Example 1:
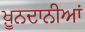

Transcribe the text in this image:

ਖ਼ੂਨਦਾਨੀਆਂ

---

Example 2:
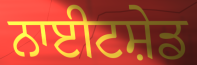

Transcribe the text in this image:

ਨਾਈਟਸ਼ੇਡ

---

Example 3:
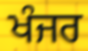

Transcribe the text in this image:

ਖੰਜਰ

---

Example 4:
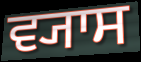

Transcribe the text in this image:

ਵ੍ਯਾਸ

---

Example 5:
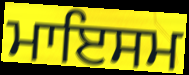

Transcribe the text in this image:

ਮਾਇਸਮ